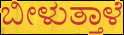
ಬೀಳುತ್ತಾಳೆ